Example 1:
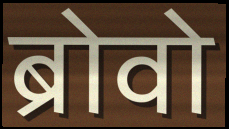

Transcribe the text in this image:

ब्रोवो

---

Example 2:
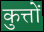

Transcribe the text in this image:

कुत्तों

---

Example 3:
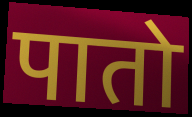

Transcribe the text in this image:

पातो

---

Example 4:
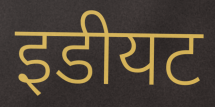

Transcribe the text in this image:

इडीयट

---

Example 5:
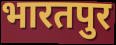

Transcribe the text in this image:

भारतपुर